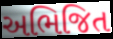
અભિજિત